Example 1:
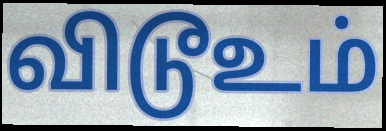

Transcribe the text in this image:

விடூஉம்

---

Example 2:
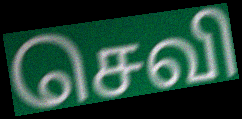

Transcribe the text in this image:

செவி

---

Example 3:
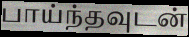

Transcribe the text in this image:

பாய்ந்தவுடன்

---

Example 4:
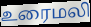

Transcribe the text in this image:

உரைமலி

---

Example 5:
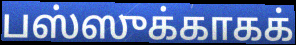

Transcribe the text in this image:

பஸ்ஸுக்காகக்